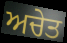
ਅਚੇਤ